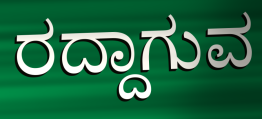
ರದ್ದಾಗುವ